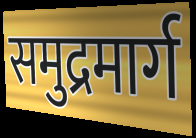
समुद्रमार्ग